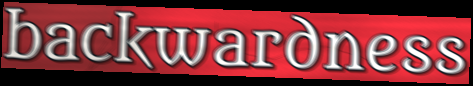
backwardness